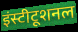
इंस्टीटूशनल